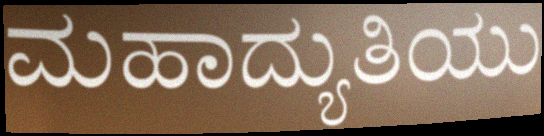
ಮಹಾದ್ಯುತಿಯು